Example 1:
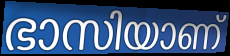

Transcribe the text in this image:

ഭാസിയാണ്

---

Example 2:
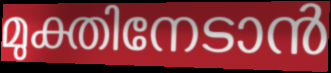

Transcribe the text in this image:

മുക്തിനേടാൻ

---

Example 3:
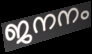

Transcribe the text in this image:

ജനനം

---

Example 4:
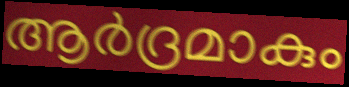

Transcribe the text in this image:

ആർദ്രമാകും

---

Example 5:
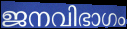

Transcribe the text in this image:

ജനവിഭാഗം